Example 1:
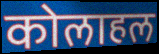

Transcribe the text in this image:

कोलाहल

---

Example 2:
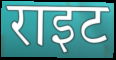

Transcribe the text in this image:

राइट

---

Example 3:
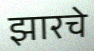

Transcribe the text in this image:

झारचे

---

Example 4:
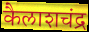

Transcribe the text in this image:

कैलाशचंद्र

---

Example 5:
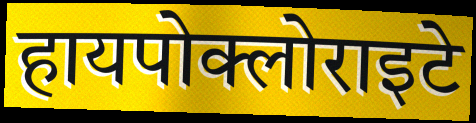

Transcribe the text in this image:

हायपोक्लोराइटे